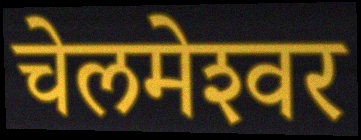
चेलमेश्‍वर